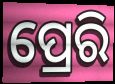
ପ୍ରେରି